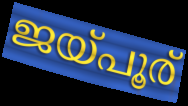
ജയ്പൂര്